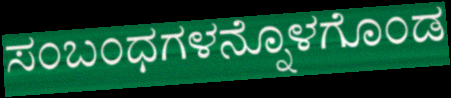
ಸಂಬಂಧಗಳನ್ನೊಳಗೊಂಡ